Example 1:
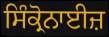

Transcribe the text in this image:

ਸਿੰਕ੍ਰੋਨਾਈਜ਼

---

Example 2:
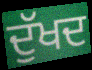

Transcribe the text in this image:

ਦੁੱਖਦ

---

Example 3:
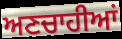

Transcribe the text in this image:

ਅਣਚਾਹੀਆਂ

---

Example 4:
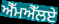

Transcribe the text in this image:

ਐੱਮਐੱਲਏ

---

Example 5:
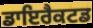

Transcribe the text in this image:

ਡਾਇਰੈਕਟਡ